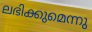
ലഭിക്കുമെന്നു